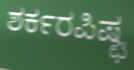
ಶರ್ಕರಪಿಷ್ಟ